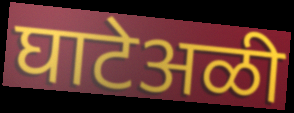
घाटेअळी